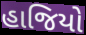
હાજિયો